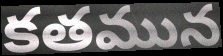
కతమున